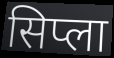
सिप्ला